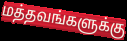
மத்தவங்களுக்கு